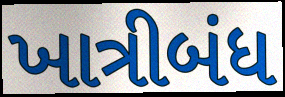
ખાત્રીબંધ